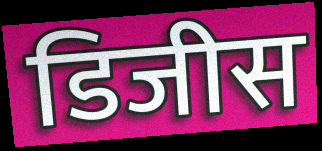
डिजीस